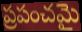
ప్రపంచమై